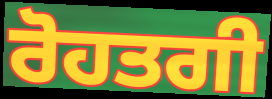
ਰੋਹਤਗੀ